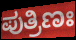
ಪುತ್ರಿಣಃ